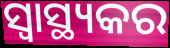
ସ୍ୱାସ୍ଥ୍ୟକର